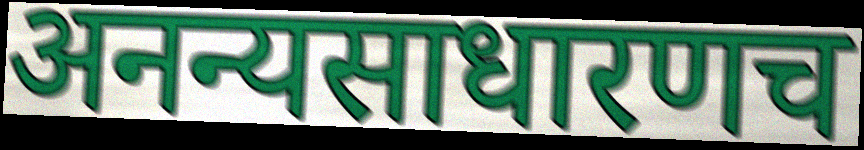
अनन्यसाधारणच